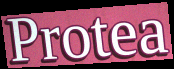
Protea